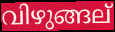
വിഴുങ്ങല്